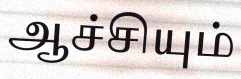
ஆச்சியும்